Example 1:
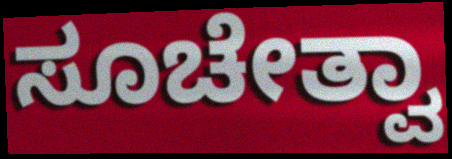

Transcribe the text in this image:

ಸೂಚೇತ್ವಾ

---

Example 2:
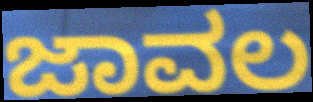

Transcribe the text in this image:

ಜಾವಲ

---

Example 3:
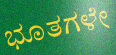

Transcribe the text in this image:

ಭೂತಗಳೇ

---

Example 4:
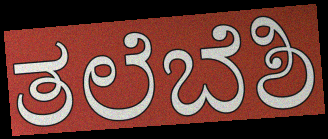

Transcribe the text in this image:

ತಲೆಬೆಶಿ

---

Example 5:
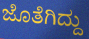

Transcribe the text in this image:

ಜೊತೆಗಿದ್ದು